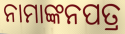
ନାମାଙ୍କନପତ୍ର